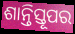
ଶାନ୍ତିସ୍ତୂପର